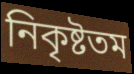
নিকৃষ্টতম